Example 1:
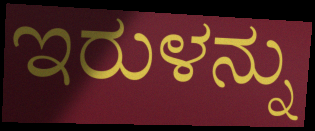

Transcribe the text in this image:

ಇರುಳನ್ನು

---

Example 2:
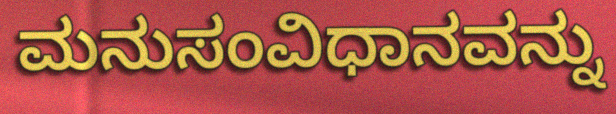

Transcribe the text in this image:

ಮನುಸಂವಿಧಾನವನ್ನು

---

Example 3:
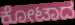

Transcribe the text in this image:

ಕೋಟಾದ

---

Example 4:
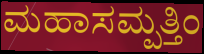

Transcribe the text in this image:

ಮಹಾಸಮ್ಪತ್ತಿಂ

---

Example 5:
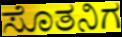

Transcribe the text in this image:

ಸೊತನಿಗ